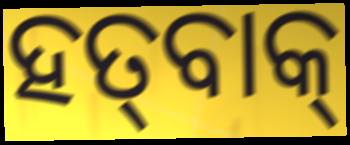
ହତ୍‌ବାକ୍